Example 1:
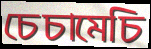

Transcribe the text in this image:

চেচামেচি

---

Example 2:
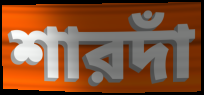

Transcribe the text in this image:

শারদাঁ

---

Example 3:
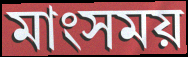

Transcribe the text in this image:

মাংসময়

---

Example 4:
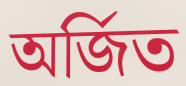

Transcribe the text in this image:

অর্জিত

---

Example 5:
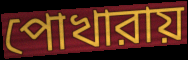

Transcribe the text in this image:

পোখারায়